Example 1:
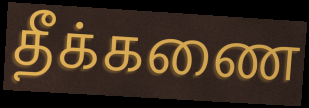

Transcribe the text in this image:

தீக்கணை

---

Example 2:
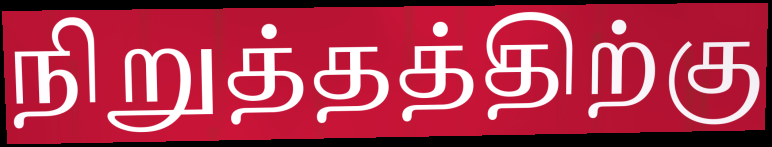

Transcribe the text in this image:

நிறுத்தத்திற்கு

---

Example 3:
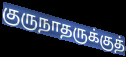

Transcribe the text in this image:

குருநாதருக்குத்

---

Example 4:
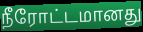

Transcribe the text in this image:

நீரோட்டமானது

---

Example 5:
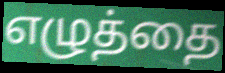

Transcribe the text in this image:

எழுத்தை